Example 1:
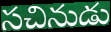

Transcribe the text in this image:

సచినుడు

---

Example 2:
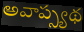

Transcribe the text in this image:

అవాప్స్యథ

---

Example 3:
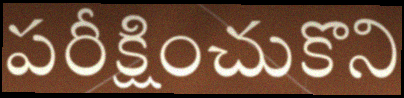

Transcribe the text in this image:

పరీక్షించుకొని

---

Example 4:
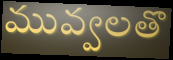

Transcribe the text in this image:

మువ్వలతొ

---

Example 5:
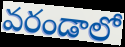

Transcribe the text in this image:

వరండాలో